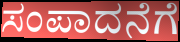
ಸಂಪಾದನೆಗೆ